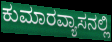
ಕುಮಾರವ್ಯಾಸನಲ್ಲಿ